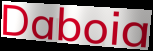
Daboia